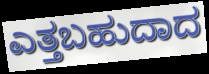
ಎತ್ತಬಹುದಾದ